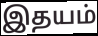
இதயம்